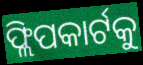
ଫ୍ଲିପକାର୍ଟକୁ